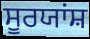
ਸੂਰਯਾਂਸ਼